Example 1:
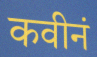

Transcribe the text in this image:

कवीनं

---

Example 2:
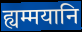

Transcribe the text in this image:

ह्यम्मयानि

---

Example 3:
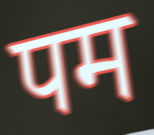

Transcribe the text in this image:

पम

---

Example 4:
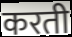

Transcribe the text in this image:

करती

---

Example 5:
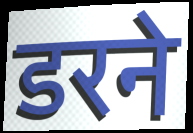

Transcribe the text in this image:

डरने